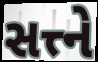
સત્ત્ને